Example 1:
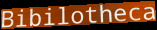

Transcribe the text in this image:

Bibilotheca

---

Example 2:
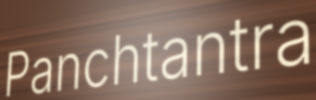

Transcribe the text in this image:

Panchtantra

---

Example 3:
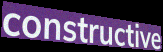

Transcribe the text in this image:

constructive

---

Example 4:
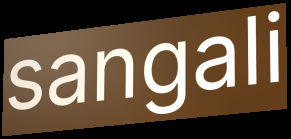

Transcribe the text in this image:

sangali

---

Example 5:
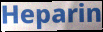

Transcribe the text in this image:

Heparin